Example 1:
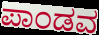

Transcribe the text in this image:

ಪಾಂಡವ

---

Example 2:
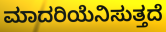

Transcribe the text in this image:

ಮಾದರಿಯೆನಿಸುತ್ತದೆ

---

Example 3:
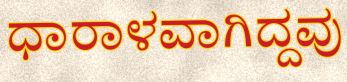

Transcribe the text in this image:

ಧಾರಾಳವಾಗಿದ್ದವು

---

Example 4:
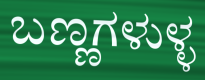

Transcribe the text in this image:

ಬಣ್ಣಗಳುಳ್ಳ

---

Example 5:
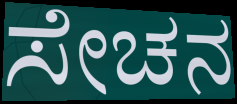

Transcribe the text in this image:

ಸೇಚನ